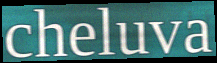
cheluva